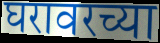
घरावरच्या